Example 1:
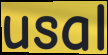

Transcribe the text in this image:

usal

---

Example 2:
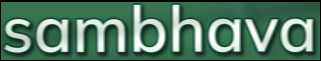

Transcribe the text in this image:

sambhava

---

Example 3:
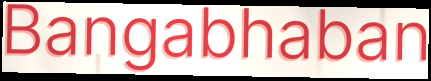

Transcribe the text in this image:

Bangabhaban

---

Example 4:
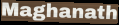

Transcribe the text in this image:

Maghanath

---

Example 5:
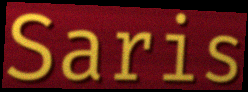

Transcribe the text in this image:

Saris